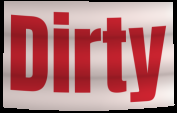
Dirty